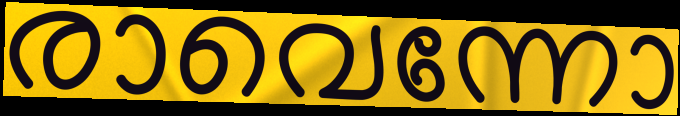
രാവെന്നോ